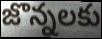
జొన్నలకు